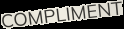
COMPLIMENT